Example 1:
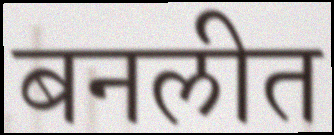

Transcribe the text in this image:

बनलीत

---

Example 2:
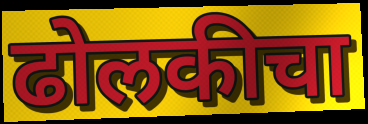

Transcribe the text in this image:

ढोलकीचा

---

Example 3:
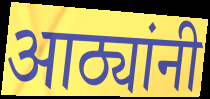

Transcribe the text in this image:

आठ्यांनी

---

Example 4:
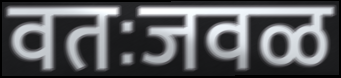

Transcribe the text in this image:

वतःजवळ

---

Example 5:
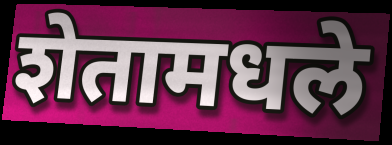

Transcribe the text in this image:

शेतामधले